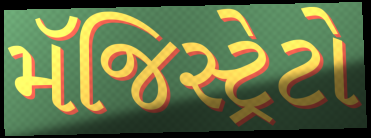
મૅજિસ્ટ્રેટો